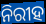
ନିରୀହ